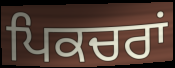
ਪਿਕਚਰਾਂ